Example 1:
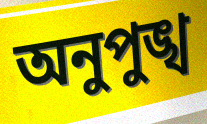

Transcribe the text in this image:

অনুপুঙ্খ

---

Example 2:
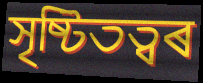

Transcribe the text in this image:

সৃষ্টিতত্বৰ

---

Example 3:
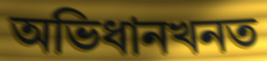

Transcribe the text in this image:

অভিধানখনত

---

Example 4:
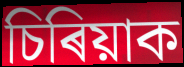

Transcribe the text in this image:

চিৰিয়াক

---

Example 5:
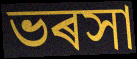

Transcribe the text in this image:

ভৰসা